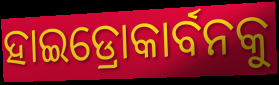
ହାଇଡ୍ରୋକାର୍ବନକୁ